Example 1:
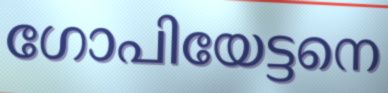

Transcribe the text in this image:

ഗോപിയേട്ടനെ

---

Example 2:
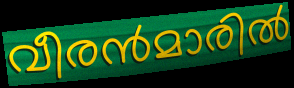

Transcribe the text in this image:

വീരൻമാരിൽ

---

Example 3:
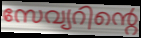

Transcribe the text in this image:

സേവ്യറിന്റെ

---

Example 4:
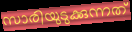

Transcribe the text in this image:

സാരിയുടുക്കുന്നത്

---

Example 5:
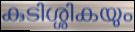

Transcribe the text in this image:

കുടിശ്ശികയും